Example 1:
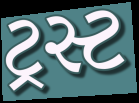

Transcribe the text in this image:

ટ્રસ્ટ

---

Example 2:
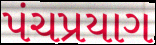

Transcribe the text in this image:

પંચપ્રયાગ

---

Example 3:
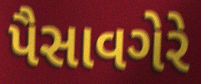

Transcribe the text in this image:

પૈસાવગેરે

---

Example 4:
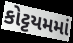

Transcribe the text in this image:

કોટ્ટયમમાં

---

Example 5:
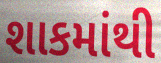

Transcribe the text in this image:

શાકમાંથી